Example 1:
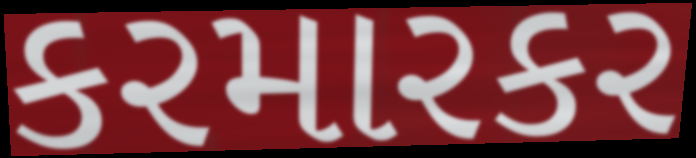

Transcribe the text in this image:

કરમારકર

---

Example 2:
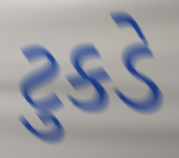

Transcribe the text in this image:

ટુકડે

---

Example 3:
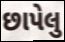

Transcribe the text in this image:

છાપેલુ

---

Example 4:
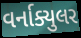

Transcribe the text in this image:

વર્નાક્યુલર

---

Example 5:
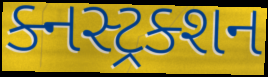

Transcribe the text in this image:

ક્નસ્ટ્રક્શન